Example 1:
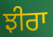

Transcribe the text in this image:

ਝੀਰਾ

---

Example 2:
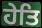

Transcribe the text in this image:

ਹੇਤਿ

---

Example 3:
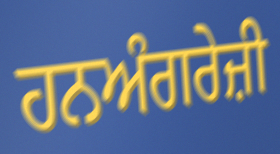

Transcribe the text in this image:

ਹਨਅੰਗਰੇਜ਼ੀ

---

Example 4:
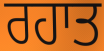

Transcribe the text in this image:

ਰਹਾਤ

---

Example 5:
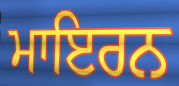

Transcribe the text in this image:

ਮਾਇਰਨ